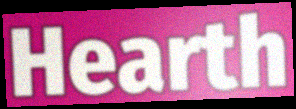
Hearth